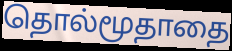
தொல்மூதாதை